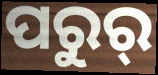
ପରୁର୍